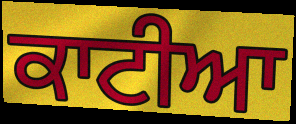
ਕਾਟੀਆ